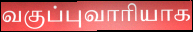
வகுப்புவாரியாக